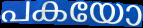
പകയോ